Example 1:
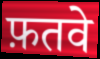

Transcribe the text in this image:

फ़तवे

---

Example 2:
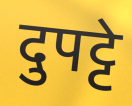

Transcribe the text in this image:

दुपट्टे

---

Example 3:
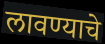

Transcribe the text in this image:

लावण्याचे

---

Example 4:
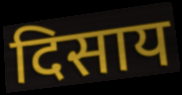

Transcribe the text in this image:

दिसाय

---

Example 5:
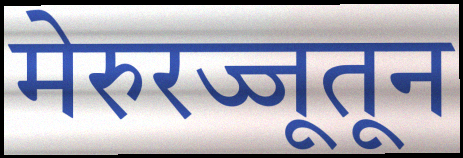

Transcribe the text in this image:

मेरुरज्जूतून